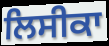
ਲਿਸੀਕਾ